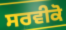
ਸਰਵੀਕੋ